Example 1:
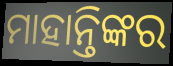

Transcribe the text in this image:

ମାହାନ୍ତିଙ୍କର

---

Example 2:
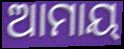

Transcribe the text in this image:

ଆମାୟ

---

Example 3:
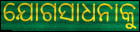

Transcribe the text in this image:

ଯୋଗସାଧନାକୁ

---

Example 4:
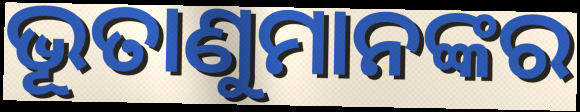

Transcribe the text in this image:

ଭୂତାଣୁମାନଙ୍କର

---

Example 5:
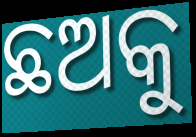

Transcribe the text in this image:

ଛଅକୁ